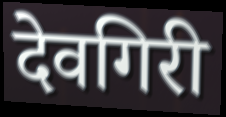
देवगिरी